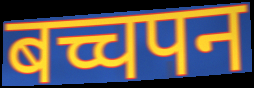
बच्चपन